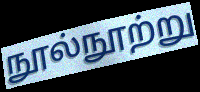
நூல்நூற்று